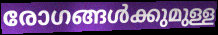
രോഗങ്ങൾക്കുമുള്ള